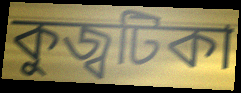
কুজ্বটিকা